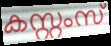
കസ്റ്റംസ്